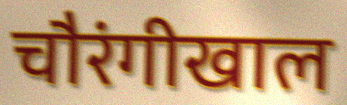
चौरंगीखाल